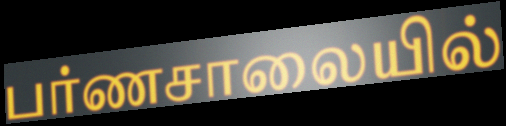
பர்ணசாலையில்